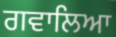
ਗਵਾਲਿਆ